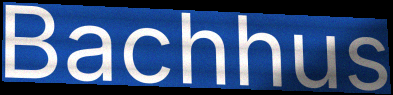
Bachhus